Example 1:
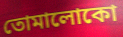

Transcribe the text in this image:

তোমালোকো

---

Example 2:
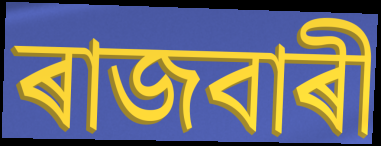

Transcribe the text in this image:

ৰাজবাৰী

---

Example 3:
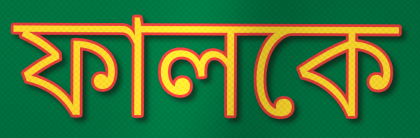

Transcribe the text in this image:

ফালকে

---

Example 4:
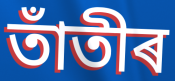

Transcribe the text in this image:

তাঁতীৰ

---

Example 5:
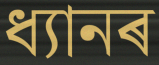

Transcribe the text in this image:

ধ্যানৰ